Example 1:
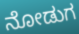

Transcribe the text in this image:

ನೋಡುಗ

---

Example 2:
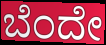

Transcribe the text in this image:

ಬೆಂದೇ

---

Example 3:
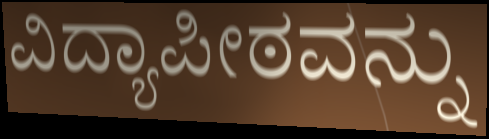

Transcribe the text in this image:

ವಿದ್ಯಾಪೀಠವನ್ನು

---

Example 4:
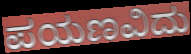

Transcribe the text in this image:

ಪಯಣವಿದು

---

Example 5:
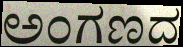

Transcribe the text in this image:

ಅಂಗಣದ